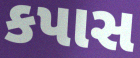
કપાસ